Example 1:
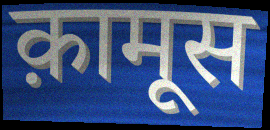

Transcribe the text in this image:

क़ामूस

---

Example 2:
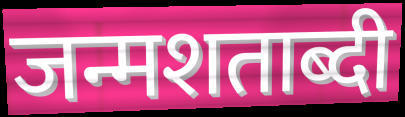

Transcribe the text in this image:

जन्मशताब्दी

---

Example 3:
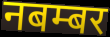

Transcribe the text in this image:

नबम्बर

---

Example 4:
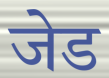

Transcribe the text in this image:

जेड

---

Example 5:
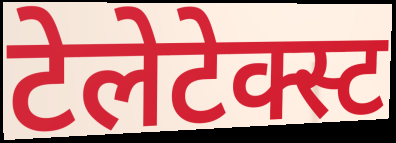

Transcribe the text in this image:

टेलेटेक्स्ट